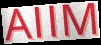
AIIM